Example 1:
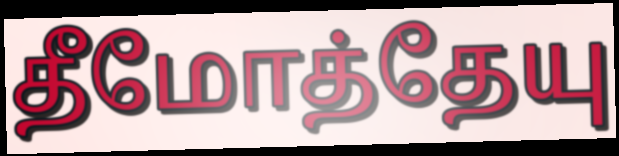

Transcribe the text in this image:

தீமோத்தேயு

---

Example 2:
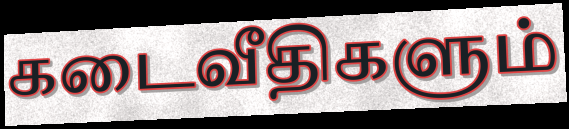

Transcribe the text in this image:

கடைவீதிகளும்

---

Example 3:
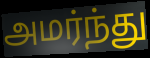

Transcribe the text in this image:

அமர்ந்து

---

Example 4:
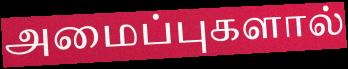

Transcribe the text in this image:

அமைப்புகளால்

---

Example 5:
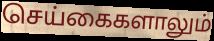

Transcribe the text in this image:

செய்கைகளாலும்